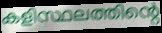
കളിസ്ഥലത്തിന്റെ